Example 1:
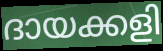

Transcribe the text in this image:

ദായക്കളി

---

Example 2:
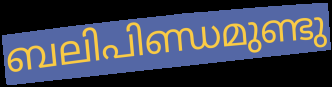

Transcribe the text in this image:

ബലിപിണ്ഡമുണ്ടു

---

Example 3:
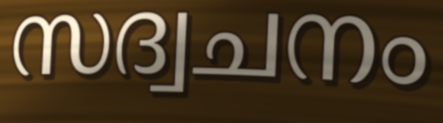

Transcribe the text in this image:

സദ്വചനം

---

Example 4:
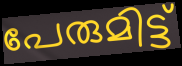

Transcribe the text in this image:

പേരുമിട്ട്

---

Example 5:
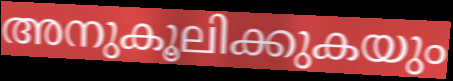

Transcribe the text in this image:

അനുകൂലിക്കുകയും